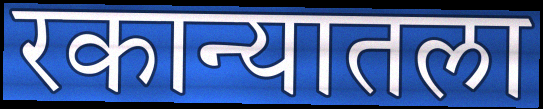
रकान्यातला